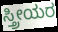
ಸ್ತ್ರೀಯರ